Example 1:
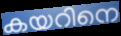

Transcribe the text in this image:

കയറിനെ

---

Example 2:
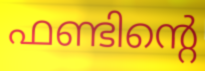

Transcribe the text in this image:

ഫണ്ടിന്റെ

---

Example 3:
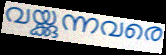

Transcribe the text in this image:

വയ്ക്കുന്നവരെ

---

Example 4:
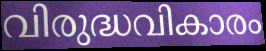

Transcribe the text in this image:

വിരുദ്ധവികാരം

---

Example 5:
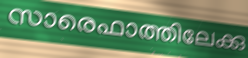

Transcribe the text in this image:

സാരെഫാത്തിലേക്കു